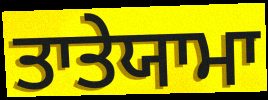
ਤਾਤੇਯਾਮਾ